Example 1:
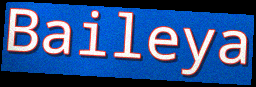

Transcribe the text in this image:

Baileya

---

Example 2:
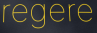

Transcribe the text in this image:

regere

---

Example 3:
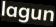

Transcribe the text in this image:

lagun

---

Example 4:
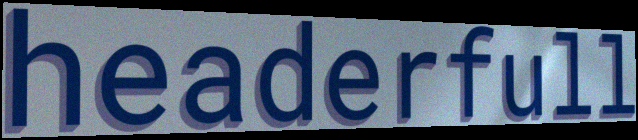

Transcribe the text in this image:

headerfull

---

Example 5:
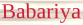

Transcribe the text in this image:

Babariya